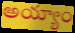
అయ్యాం